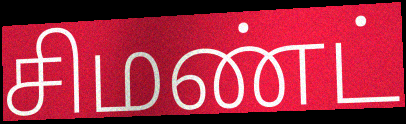
சிமண்ட்